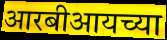
आरबीआयच्या